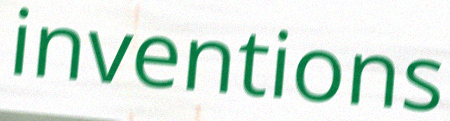
inventions